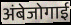
अंबेजोगाई